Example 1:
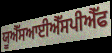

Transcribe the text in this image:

ਯੂਐੱਸਆਈਐੱਸਪੀਐੱਫ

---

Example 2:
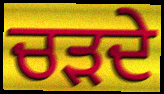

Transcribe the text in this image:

ਚੜਦੇ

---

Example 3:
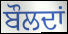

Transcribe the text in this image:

ਬੌਲਦਾਂ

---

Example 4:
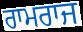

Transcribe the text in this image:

ਰਾਮਰਾਜ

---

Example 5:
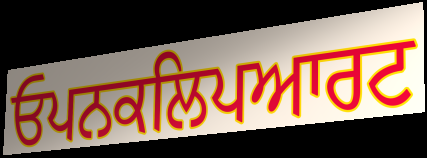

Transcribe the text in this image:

ਓਪਨਕਲਿਪਆਰਟ